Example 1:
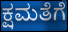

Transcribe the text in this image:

ಕ್ಷಮತೆಗೆ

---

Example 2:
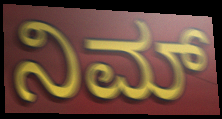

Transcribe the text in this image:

ನಿಮ್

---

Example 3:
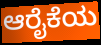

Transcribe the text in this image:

ಆರೈಕೆಯ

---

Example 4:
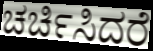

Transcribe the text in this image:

ಚರ್ಚಿಸಿದರೆ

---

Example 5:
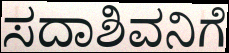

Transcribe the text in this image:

ಸದಾಶಿವನಿಗೆ